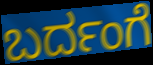
ಬರ್ದಂಗೆ